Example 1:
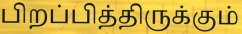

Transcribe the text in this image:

பிறப்பித்திருக்கும்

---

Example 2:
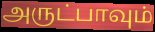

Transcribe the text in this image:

அருட்பாவும்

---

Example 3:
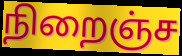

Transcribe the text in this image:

நிறைஞ்ச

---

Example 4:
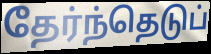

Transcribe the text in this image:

தேர்ந்தெடுப்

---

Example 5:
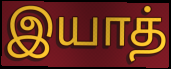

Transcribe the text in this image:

இயாத்